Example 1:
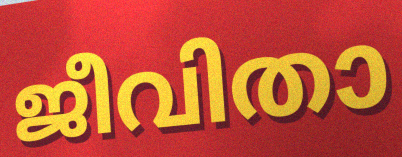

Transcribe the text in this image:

ജീവിതാ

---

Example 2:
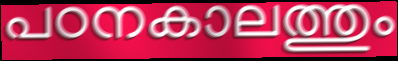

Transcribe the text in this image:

പഠനകാലത്തും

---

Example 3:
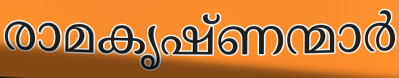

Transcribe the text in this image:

രാമകൃഷ്ണന്മാർ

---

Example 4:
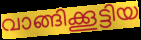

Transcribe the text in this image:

വാങ്ങിക്കൂട്ടിയ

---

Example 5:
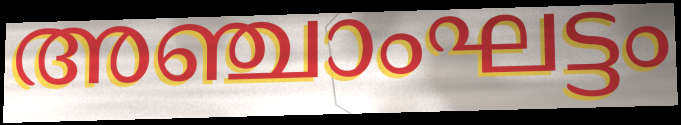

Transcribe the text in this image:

അഞ്ചാംഘട്ടം